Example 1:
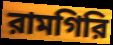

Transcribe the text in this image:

রামগিরি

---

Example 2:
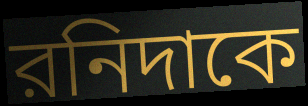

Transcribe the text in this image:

রনিদাকে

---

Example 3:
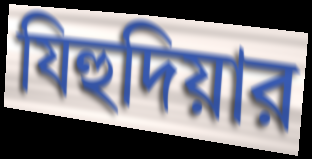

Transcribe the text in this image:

যিহুদিয়ার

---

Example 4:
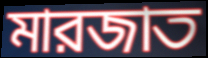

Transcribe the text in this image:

মারজাত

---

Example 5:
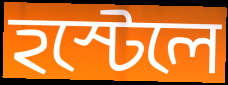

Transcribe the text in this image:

হস্টেলে